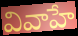
వివాహే